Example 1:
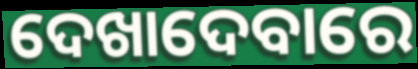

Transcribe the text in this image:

ଦେଖାଦେବାରେ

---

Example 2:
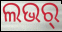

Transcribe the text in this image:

ଲଭର୍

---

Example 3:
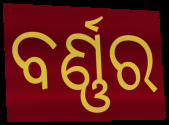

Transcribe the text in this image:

ବର୍ଣ୍ଣର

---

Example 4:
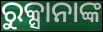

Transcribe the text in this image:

ରୁକ୍ସାନାଙ୍କ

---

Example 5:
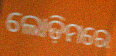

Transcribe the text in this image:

ଲୋଡ଼ିମରେ